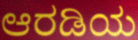
ಆರಡಿಯ